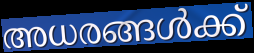
അധരങ്ങൾക്ക്